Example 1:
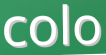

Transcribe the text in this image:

colo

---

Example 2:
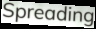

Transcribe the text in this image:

Spreading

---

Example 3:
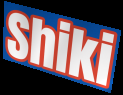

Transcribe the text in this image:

Shiki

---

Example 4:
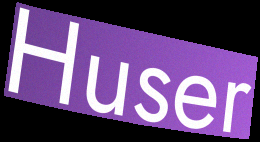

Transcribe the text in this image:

Huser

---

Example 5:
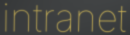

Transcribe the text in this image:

intranet